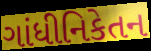
ગાંધીનિકેતન